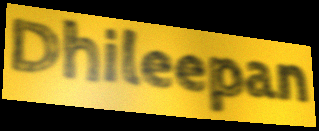
Dhileepan